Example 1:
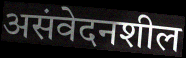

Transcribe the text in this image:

असंवेदनशील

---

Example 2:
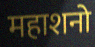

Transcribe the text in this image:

महाशनो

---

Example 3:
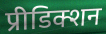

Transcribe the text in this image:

प्रीडिक्शन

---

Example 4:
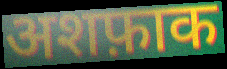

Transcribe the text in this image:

अशफ़ाक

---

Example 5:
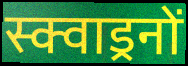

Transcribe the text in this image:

स्क्वाड्रनों